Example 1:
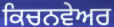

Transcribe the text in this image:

ਕਿਚਨਵੇਅਰ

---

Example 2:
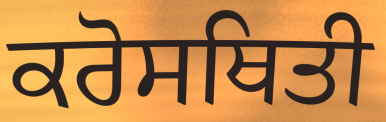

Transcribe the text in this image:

ਕਰੋਸਥਿਤੀ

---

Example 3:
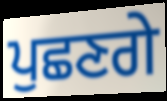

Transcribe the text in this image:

ਪੁਛਣਗੇ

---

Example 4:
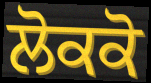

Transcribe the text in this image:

ਲੋਕਕੋ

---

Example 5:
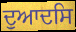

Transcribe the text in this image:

ਦੁਆਦਸਿ